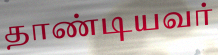
தாண்டியவர்